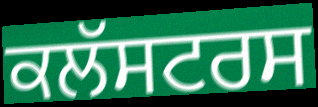
ਕਲੱਸਟਰਸ